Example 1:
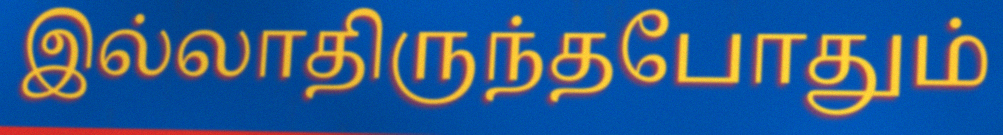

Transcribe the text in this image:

இல்லாதிருந்தபோதும்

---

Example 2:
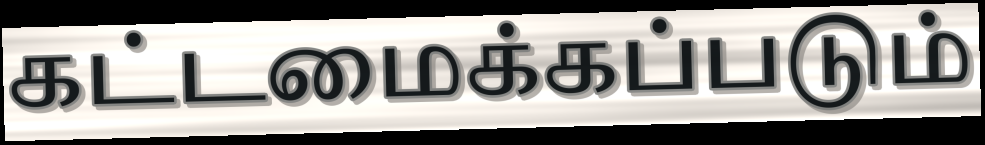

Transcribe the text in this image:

கட்டமைக்கப்படும்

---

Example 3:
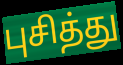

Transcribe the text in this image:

புசித்து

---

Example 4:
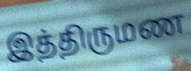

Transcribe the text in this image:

இத்திருமண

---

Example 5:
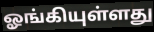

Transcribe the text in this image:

ஓங்கியுள்ளது